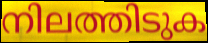
നിലത്തിടുക